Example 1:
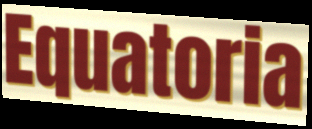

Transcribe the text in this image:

Equatoria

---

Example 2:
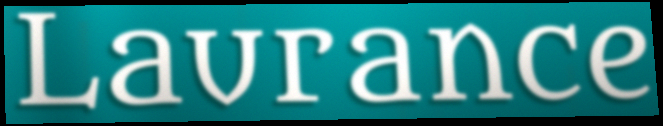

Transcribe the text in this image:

Laurance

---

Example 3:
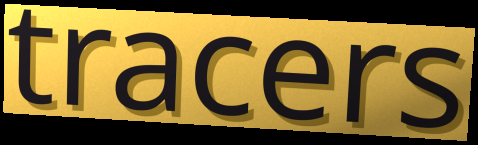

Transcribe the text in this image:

tracers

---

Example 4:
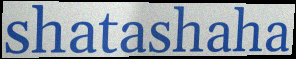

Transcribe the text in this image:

shatashaha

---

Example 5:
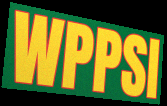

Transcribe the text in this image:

WPPSI